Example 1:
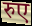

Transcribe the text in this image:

रुए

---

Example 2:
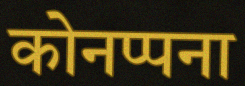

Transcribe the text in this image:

कोनप्पना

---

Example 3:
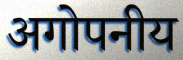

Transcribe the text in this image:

अगोपनीय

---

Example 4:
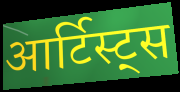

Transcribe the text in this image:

आर्टिस्ट्स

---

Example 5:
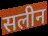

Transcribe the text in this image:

सलीन